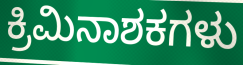
ಕ್ರಿಮಿನಾಶಕಗಳು